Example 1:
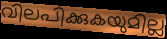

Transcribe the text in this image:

വിലപിക്കുകയുമില്ല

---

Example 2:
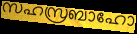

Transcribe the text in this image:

സഹസ്രബാഹോ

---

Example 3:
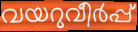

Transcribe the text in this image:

വയറുവീർപ്പ്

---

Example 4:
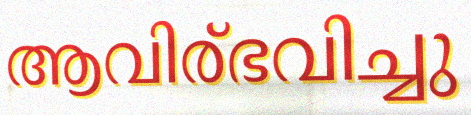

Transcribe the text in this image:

ആവിര്ഭവിച്ചു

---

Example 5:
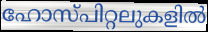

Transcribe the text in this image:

ഹോസ്പിറ്റലുകളിൽ